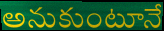
అనుకుంటూనే